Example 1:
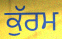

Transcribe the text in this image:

ਕੁੱਰਮ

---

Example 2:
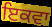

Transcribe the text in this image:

ਇਕਵਾ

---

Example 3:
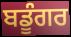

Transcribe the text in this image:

ਬਡੂੰਗਰ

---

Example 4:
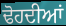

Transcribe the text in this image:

ਢੋਹਦੀਆਂ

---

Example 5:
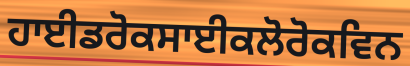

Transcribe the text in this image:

ਹਾਈਡਰੋਕਸਾਈਕਲੋਰੋਕਵਿਨ